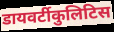
डायवर्टीकुलिटिस